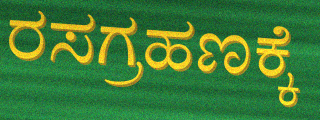
ರಸಗ್ರಹಣಕ್ಕೆ